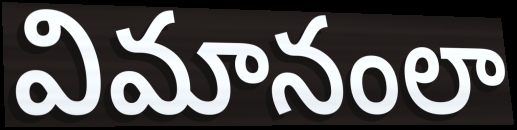
విమానంలా